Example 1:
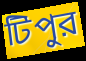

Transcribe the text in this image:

টিপুর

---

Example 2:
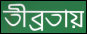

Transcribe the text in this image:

তীব্রতায়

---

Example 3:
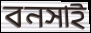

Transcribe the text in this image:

বনসাই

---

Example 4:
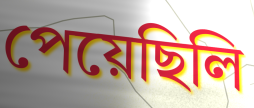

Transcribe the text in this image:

পেয়েছিলি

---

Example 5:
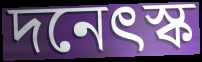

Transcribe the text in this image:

দনেৎস্ক